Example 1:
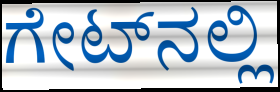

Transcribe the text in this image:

ಗೇಟ್‌ನಲ್ಲಿ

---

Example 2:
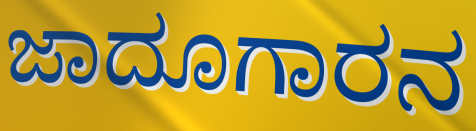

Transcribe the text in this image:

ಜಾದೂಗಾರನ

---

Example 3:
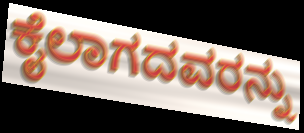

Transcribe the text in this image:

ಕೈಲಾಗದವರನ್ನು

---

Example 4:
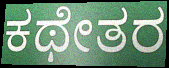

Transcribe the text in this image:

ಕಥೇತರ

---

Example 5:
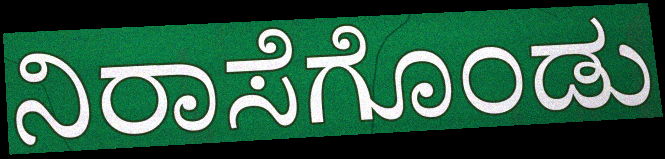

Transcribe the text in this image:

ನಿರಾಸೆಗೊಂಡು